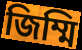
জিম্মি